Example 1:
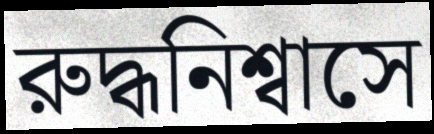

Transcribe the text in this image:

রুদ্ধনিশ্বাসে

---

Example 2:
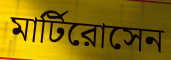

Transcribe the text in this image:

মার্টিরোসেন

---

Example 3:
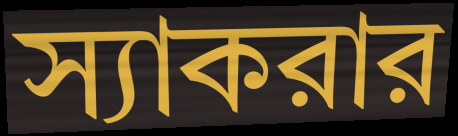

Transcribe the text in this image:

স্যাকরার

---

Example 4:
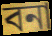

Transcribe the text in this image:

বনা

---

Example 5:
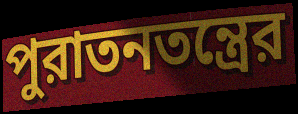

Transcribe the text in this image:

পুরাতনতন্ত্রের